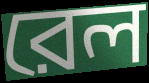
রেল